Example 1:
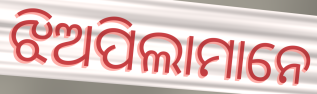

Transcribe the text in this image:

ଝିଅପିଲାମାନେ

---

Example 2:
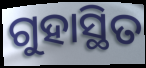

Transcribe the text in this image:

ଗୁହାସ୍ଥିତ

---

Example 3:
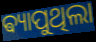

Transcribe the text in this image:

ଵ୍ୟାପୁଥିଲା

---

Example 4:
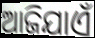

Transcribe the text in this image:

ଆଜିଯାଏଁ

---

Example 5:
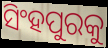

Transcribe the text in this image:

ସିଂହପୁରକୁ